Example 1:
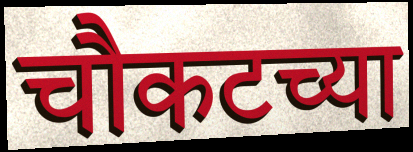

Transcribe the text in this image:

चौकटच्या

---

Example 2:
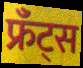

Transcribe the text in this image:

फ्रँट्स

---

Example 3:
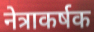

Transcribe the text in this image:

नेत्राकर्षक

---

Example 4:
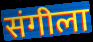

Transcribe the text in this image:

संगीला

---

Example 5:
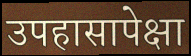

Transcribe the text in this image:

उपहासापेक्षा